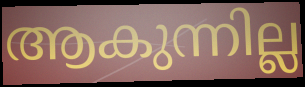
ആകുന്നില്ല